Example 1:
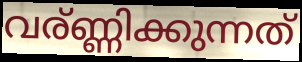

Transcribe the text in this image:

വര്ണ്ണിക്കുന്നത്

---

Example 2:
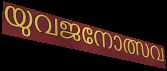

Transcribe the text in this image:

യുവജനോത്സവ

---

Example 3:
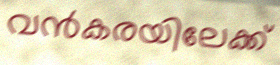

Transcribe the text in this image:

വൻകരയിലേക്ക്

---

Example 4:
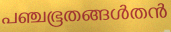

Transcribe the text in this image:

പഞ്ചഭൂതങ്ങൾതൻ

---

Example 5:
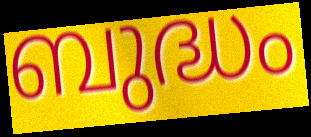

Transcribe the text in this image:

ബുദ്ധം